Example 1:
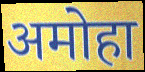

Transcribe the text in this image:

अमोहा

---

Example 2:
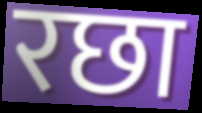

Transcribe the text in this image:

रछा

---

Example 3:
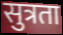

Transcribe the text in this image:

सुत्रता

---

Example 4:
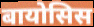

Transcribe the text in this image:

बायोसिस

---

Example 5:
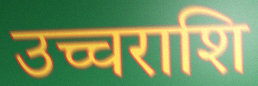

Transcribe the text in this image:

उच्चराशि